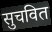
सुचवित